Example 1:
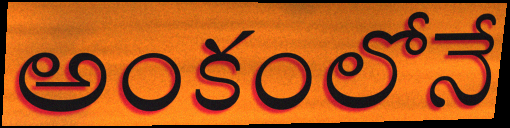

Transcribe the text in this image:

అంకంలోనే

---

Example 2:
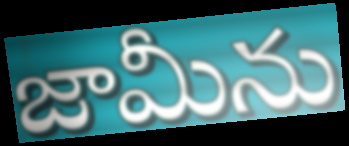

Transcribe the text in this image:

జామీను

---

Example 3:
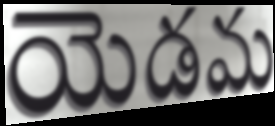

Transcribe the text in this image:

యెడమ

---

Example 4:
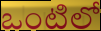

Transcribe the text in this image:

ఒంటిలో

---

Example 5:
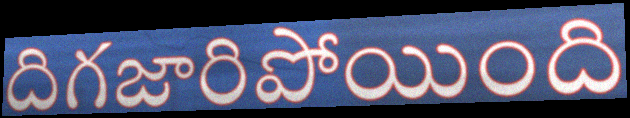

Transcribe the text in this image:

దిగజారిపోయింది